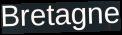
Bretagne